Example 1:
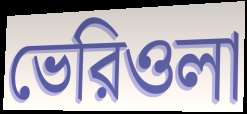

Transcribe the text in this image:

ভেরিওলা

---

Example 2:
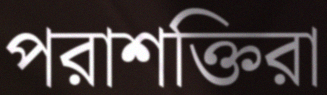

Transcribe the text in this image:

পরাশক্তিরা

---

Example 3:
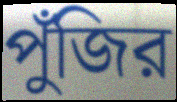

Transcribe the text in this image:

পুঁজির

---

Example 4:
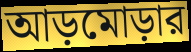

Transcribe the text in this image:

আড়মোড়ার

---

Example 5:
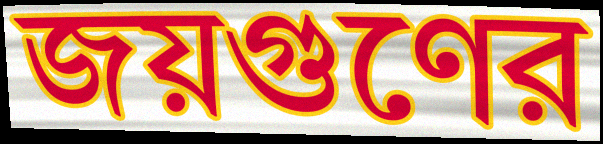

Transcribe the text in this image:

জয়গুণের